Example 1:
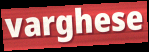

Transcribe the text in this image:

varghese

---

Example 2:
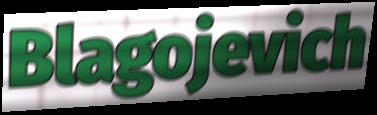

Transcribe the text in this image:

Blagojevich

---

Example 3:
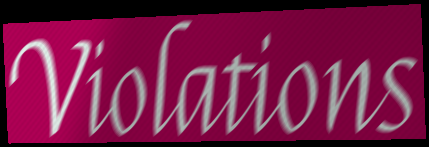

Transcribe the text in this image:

Violations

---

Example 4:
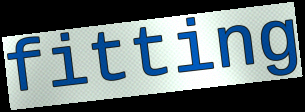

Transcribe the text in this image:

fitting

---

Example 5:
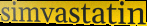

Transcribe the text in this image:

simvastatin